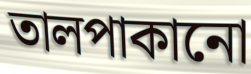
তালপাকানো